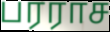
பரராச